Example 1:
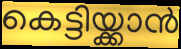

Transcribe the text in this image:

കെട്ടിയ്ക്കാൻ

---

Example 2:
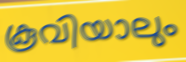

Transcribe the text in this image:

കൂവിയാലും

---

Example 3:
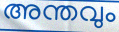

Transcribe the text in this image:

അന്തവും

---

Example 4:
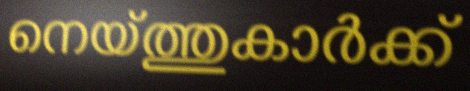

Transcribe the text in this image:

നെയ്ത്തുകാർക്ക്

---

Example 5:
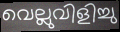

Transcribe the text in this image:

വെല്ലുവിളിച്ചു